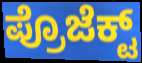
ಪ್ರೊಜೆಕ್ಟ್